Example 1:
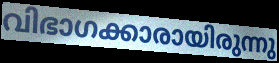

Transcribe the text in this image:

വിഭാഗക്കാരായിരുന്നു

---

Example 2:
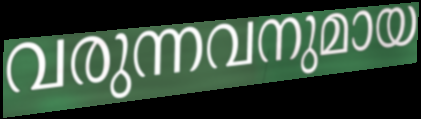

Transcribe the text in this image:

വരുന്നവനുമായ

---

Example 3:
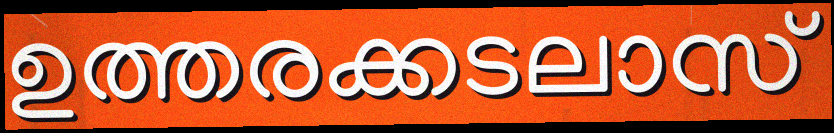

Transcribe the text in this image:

ഉത്തരക്കടലാസ്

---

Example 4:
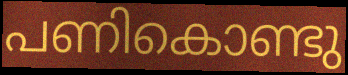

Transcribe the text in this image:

പണികൊണ്ടു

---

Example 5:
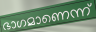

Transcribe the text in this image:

ഭാഗമാണെന്ന്